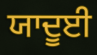
ਯਾਦੂਈ